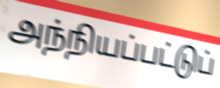
அந்நியப்பட்டுப்